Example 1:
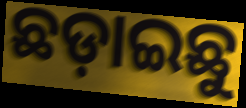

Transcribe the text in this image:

ଛଡ଼ାଇଛୁ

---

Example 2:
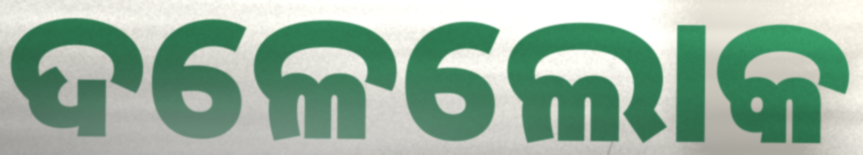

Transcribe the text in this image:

ଦଳେଲୋକ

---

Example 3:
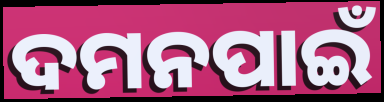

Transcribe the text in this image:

ଦମନପାଇଁ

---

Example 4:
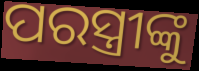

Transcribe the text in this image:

ପରସ୍ତ୍ରୀଙ୍କୁ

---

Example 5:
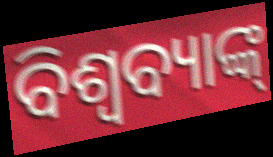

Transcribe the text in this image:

ବିଶ୍ଵବ୍ୟାଙ୍କ୍